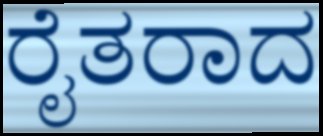
ರೈತರಾದ